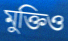
মুক্তিও